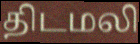
திடமலி